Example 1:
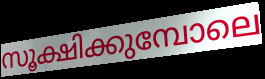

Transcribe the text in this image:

സൂക്ഷിക്കുമ്പോലെ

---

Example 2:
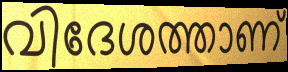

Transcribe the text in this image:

വിദേശത്താണ്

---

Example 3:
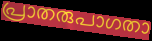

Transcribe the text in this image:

പ്രാതരുപാഗതാ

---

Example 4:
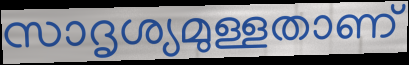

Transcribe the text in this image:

സാദൃശ്യമുള്ളതാണ്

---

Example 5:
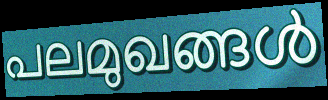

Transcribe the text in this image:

പലമുഖങ്ങൾ